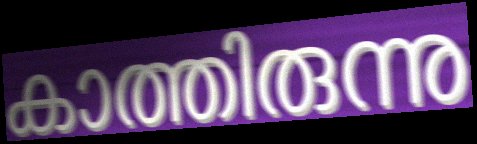
കാത്തിരുന്നു